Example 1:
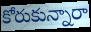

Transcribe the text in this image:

కోరుకున్నారా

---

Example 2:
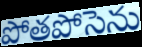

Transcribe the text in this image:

పోతపోసెను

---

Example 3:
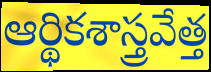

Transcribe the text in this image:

ఆర్థికశాస్త్రవేత్త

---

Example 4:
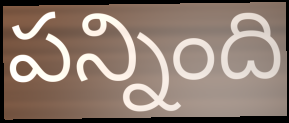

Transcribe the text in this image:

పన్నింది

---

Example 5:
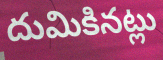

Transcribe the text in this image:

దుమికినట్లు